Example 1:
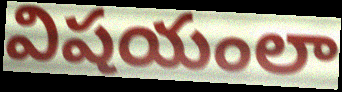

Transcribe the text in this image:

విషయంలా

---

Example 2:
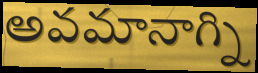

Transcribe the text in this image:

అవమానాగ్ని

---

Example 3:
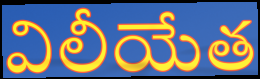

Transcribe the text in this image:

విలీయేత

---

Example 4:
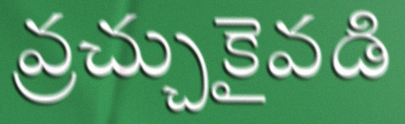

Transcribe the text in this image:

వ్రచ్చుకైవడి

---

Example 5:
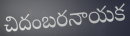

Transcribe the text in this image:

చిదంబరనాయక